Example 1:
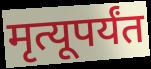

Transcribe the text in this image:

मृत्यूपर्यंत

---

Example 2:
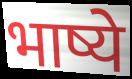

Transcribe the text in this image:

भाष्ये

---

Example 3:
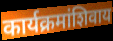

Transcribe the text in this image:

कार्यक्रमांशिवाय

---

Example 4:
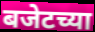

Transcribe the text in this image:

बजेटच्या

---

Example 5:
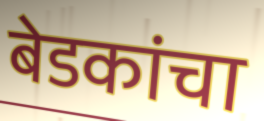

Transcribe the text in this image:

बेडकांचा